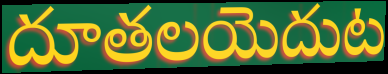
దూతలయెదుట